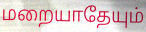
மறையாதேயும்